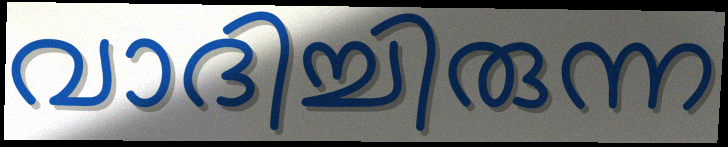
വാദിച്ചിരുന്ന